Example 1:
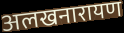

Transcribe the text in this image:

अलखनारायण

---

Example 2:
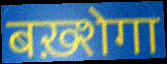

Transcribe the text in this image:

बख़्शेगा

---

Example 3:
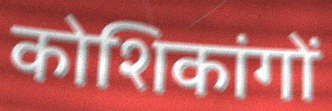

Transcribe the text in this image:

कोशिकांगों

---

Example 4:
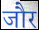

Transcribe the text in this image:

जौर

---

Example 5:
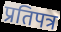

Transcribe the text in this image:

प्रतिपत्र